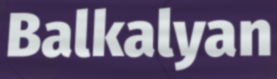
Balkalyan